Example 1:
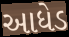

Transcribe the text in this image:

આધેડ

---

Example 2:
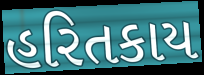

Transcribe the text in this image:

હરિતકાય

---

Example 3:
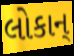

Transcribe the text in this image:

લોકાન્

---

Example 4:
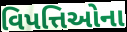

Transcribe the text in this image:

વિપત્તિઓના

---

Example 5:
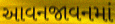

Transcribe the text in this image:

આવનજાવનમાં